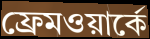
ফ্রেমওয়ার্কে